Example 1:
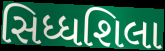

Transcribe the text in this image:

સિધ્ધશિલા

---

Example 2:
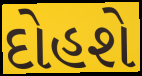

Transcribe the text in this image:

દોહશે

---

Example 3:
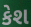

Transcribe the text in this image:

કેશ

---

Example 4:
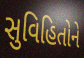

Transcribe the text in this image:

સુવિહિતોને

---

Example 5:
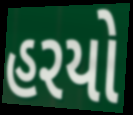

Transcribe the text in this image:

હરયો